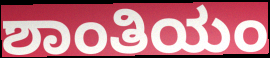
ಶಾಂತಿಯಂ